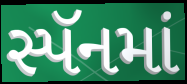
સ્પૅનમાં